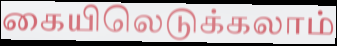
கையிலெடுக்கலாம்